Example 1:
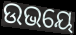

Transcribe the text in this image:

ଉଭୟେ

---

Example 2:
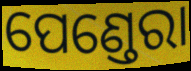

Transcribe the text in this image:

ପେଣ୍ଡେରା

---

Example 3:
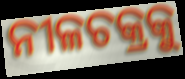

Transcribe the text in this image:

ନୀଳଚକ୍ରକୁ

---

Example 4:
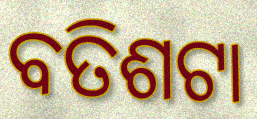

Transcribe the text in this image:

ବତିଶଟା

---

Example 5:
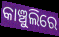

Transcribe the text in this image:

କାଞ୍ଚୁଲିରେ